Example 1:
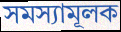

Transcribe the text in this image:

সমস্যামূলক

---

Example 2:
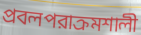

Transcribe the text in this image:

প্রবলপরাক্রমশালী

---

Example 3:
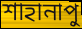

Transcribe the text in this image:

শাহানাপু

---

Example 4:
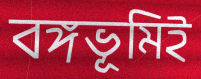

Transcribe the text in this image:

বঙ্গভূমিই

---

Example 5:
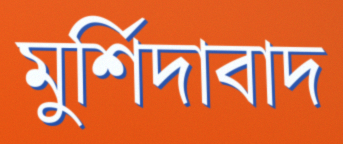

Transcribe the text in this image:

মুর্শিদাবাদ